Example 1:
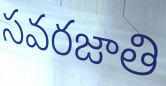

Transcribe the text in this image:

సవరజాతి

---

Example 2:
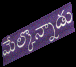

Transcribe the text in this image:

మేల్కొన్నాడు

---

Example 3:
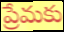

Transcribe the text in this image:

ప్రేమకు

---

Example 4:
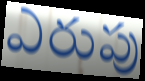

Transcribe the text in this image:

ఎరుపు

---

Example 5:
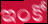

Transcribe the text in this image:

ఇంకో